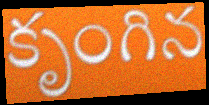
కృంగిన